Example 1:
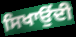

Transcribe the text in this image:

ਸਿਖਾਉਂਦੀ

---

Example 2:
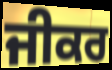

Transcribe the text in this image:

ਜੀਕਰ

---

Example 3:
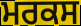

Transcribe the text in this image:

ਮਰਕਸ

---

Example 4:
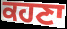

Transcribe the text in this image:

ਕਹਣਾ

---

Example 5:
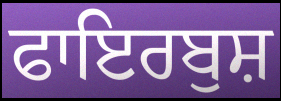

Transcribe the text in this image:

ਫਾਇਰਬੁਸ਼